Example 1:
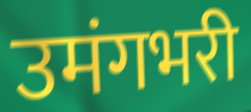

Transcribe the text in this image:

उमंगभरी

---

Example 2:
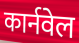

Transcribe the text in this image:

कार्नवेल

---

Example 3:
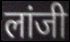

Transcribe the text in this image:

लांजी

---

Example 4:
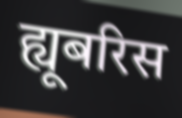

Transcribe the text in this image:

ह्यूबरिस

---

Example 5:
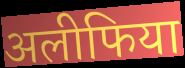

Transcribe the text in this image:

अलीफिया